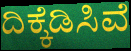
ದಿಕ್ಕೆಡಿಸಿವೆ